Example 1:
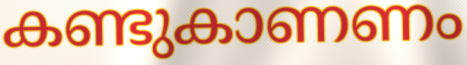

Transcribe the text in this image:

കണ്ടുകാണണം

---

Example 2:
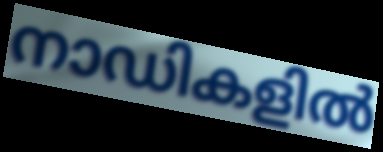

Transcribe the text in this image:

നാഡികളിൽ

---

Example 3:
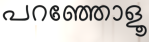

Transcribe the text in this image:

പറഞ്ഞോളൂ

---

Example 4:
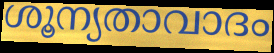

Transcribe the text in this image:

ശൂന്യതാവാദം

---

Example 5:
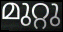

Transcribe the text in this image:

മുറ്റു